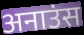
अनाउंस